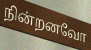
நின்றனவோ